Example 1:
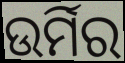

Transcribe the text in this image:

ଉର୍ମିର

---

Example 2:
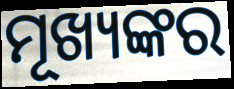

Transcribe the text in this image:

ମୂଖ୍ୟଙ୍କର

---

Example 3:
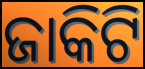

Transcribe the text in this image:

ଜାକିଟି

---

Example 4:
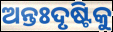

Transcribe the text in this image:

ଅନ୍ତଃଦୃଷ୍ଟିକୁ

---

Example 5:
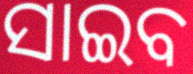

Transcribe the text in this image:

ସାଇବ